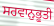
ਸਰਵਾਨੁਭੂਤੀ